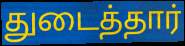
துடைத்தார்